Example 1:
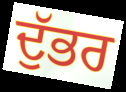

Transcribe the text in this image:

ਦੁੱਭਰ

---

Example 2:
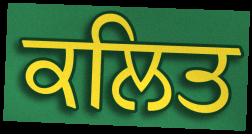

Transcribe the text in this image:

ਕਲਿਤ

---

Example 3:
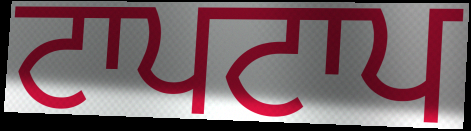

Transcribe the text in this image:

ਟਾਪਟਾਪ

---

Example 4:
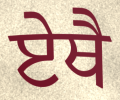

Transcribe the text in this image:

ਏਥੈ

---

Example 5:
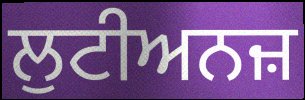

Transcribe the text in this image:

ਲੁਟੀਅਨਜ਼